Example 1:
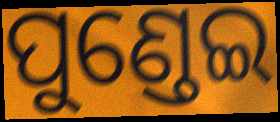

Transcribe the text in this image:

ପୁଣ୍ଡେଇ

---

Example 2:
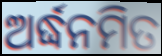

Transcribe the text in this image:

ଅର୍ଦ୍ଧନମିତ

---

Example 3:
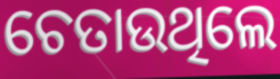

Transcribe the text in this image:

ଚେତାଉଥିଲେ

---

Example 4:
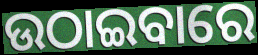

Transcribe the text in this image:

ଉଠାଇବାରେ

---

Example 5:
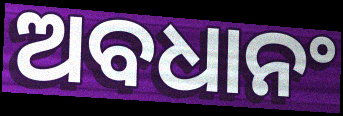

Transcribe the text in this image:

ଅବଧାନଂ